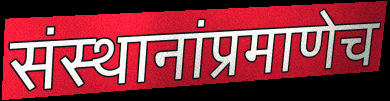
संस्थानांप्रमाणेच